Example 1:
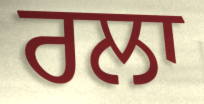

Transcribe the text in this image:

ਰਲਾ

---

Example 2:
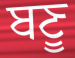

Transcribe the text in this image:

ਬਣੂ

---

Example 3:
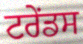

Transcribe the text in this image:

ਟਰੇਂਡਸ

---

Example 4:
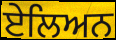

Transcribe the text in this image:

ਏਲਿਅਨ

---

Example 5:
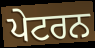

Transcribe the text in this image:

ਪੇਟਰਨ